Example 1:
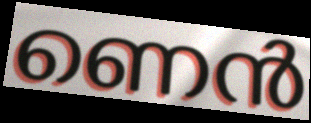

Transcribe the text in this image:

ണെൻ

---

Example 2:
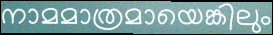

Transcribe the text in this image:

നാമമാത്രമായെങ്കിലും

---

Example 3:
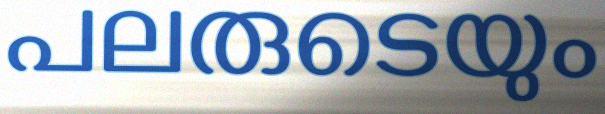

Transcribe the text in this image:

പലരുടെയും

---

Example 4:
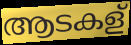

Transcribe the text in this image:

ആടകള്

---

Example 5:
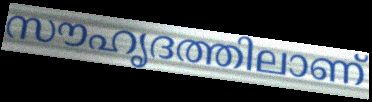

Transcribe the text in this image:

സൗഹൃദത്തിലാണ്